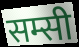
सम्सी